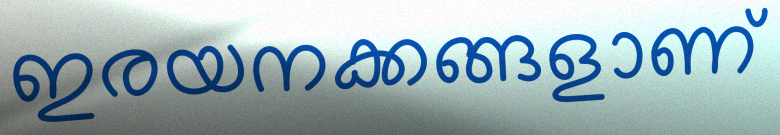
ഇരയനക്കങ്ങളാണ്